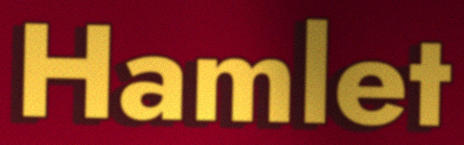
Hamlet